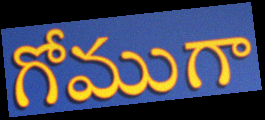
గోముగా